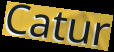
Catur